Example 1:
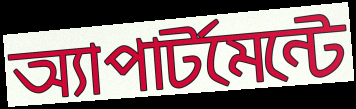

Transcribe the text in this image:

অ্যাপার্টমেন্টে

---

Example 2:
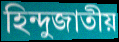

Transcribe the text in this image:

হিন্দুজাতীয়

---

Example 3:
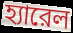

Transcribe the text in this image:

হ্যারেল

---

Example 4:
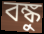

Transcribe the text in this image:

বঙ্কু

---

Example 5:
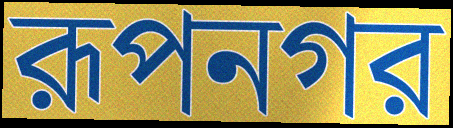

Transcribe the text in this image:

রূপনগর